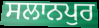
ਸਲਾਨਪੁਰ